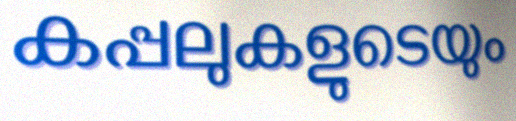
കപ്പലുകളുടെയും